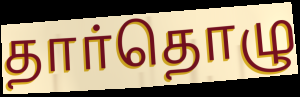
தார்தொழு